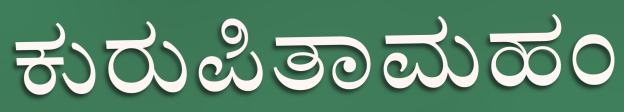
ಕುರುಪಿತಾಮಹಂ